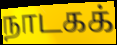
நாடகக்